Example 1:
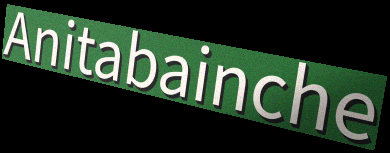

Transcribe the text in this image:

Anitabainche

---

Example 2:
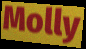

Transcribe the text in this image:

Molly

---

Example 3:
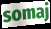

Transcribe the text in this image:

somaj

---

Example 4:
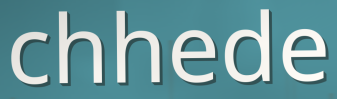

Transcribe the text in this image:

chhede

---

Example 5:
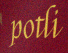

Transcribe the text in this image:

potli